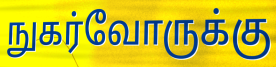
நுகர்வோருக்கு